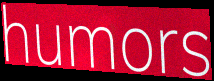
humors